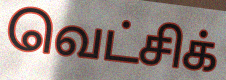
வெட்சிக்